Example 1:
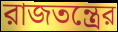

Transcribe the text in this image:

রাজতন্ত্রের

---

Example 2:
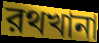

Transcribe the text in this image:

রথখানা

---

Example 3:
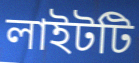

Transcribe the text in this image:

লাইটটি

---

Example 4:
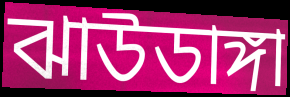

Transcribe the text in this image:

ঝাউডাঙ্গা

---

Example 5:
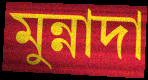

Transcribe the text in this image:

মুন্নাদা